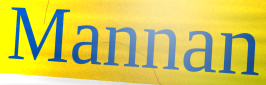
Mannan